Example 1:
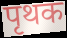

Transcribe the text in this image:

पृथक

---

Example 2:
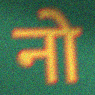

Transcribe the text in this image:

नो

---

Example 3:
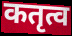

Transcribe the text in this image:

कतृत्व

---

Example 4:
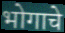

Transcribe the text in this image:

भोगाचे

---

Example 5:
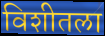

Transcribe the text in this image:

विशीतला